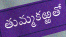
తుమ్మకఱ్ఱతో